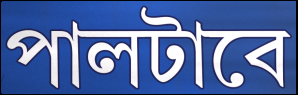
পালটাবে